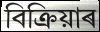
বিক্ৰিয়াৰ